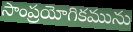
సాంప్రయోగికమును